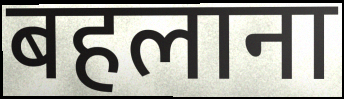
बहलाना